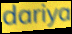
dariya